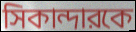
সিকান্দারকে